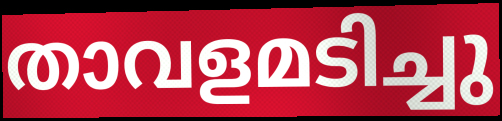
താവളമടിച്ചു